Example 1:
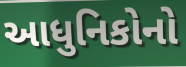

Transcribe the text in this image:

આધુનિકોનો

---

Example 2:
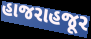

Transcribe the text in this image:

હાજરાહજૂર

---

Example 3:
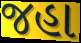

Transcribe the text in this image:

જહા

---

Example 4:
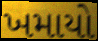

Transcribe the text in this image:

ખમાયો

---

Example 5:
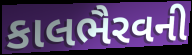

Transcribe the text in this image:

કાલભૈરવની